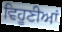
ਵਿਹੂਣੀਆਂ